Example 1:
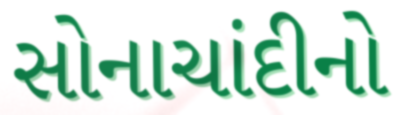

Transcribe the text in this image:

સોનાચાંદીનો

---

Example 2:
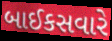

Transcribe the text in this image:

બાઈકસવારે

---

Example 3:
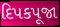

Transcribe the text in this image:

દિપકપૂજા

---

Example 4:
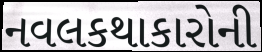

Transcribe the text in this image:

નવલકથાકારોની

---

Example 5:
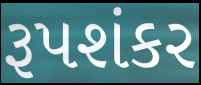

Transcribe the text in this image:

રૂપશંકર